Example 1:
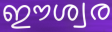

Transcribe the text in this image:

ഈശ്വര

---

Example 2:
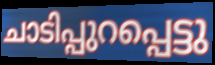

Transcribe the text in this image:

ചാടിപ്പുറപ്പെട്ടു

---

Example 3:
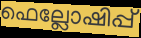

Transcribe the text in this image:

ഫെല്ലോഷിപ്പ്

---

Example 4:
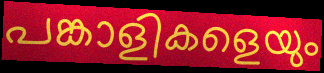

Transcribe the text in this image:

പങ്കാളികളെയും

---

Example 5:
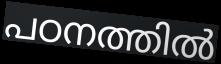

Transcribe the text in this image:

പഠനത്തിൽ